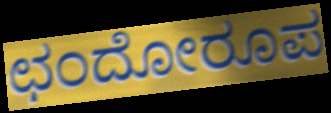
ಛಂದೋರೂಪ